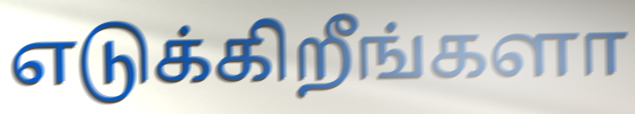
எடுக்கிறீங்களா